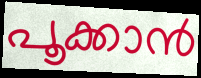
പൂക്കാൻ